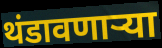
थंडावणाऱ्या